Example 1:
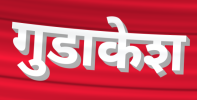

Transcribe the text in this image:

गुडाकेश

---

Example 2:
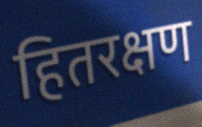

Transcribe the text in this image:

हितरक्षण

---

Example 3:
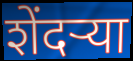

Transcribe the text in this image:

शेंदर्‍या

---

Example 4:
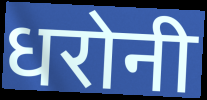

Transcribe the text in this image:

धरोनी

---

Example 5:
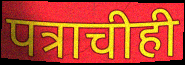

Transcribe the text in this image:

पत्राचीही